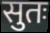
सुतः